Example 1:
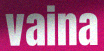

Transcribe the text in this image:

vaina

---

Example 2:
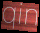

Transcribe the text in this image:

qin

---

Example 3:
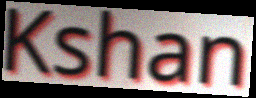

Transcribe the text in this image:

Kshan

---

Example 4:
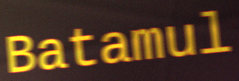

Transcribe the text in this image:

Batamul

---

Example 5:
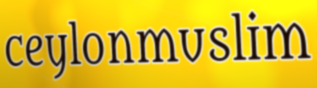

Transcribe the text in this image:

ceylonmuslim